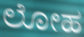
ಲೋಹ